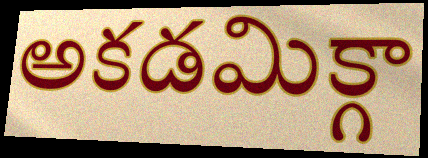
అకడమిక్గా